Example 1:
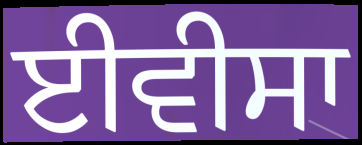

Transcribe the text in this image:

ਈਵੀਸਾ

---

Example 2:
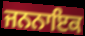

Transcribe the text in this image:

ਜਨਨਾਇਕ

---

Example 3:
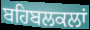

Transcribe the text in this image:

ਬਹਿਬਲਕਲਾਂ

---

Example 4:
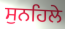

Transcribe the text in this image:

ਸੁਨਹਿਲੇ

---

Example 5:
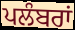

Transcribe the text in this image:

ਪਲੰਬਰਾਂ